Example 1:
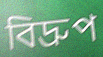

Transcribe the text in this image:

বিদ্ৰুপ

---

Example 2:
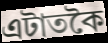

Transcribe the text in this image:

এটাতকৈ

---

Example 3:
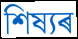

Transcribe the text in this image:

শিষ্যৰ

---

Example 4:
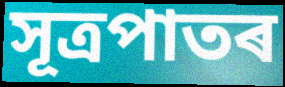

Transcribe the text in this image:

সূত্ৰপাতৰ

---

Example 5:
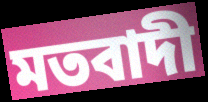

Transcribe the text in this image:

মতবাদী